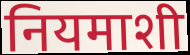
नियमाशी